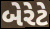
બેરેટે